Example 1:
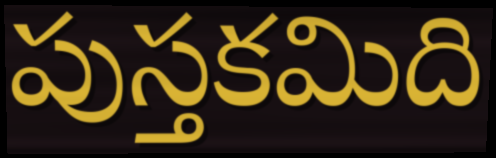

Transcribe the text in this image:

పుస్తకమిది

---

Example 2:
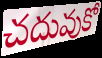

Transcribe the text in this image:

చదువుకో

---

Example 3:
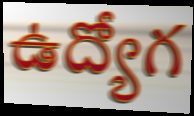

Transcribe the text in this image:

ఉద్యోగ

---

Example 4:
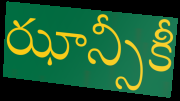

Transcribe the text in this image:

ఝాన్సీకీ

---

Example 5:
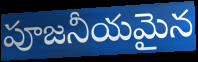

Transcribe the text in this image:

పూజనీయమైన